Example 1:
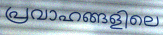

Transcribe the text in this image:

പ്രവാഹങ്ങളിലെ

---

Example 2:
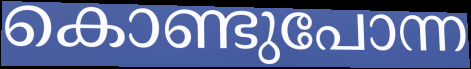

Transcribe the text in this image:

കൊണ്ടുപോന്ന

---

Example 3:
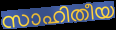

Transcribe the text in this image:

സാഹിതീയ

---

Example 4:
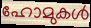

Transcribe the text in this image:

ഹോമുകൾ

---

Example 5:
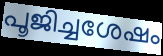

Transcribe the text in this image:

പൂജിച്ചശേഷം